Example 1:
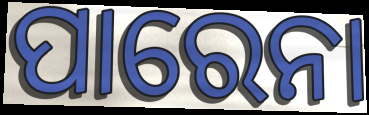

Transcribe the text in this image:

ପାରେନା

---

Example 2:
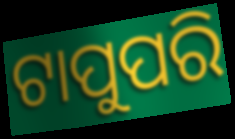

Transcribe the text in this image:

ଟାପୁପରି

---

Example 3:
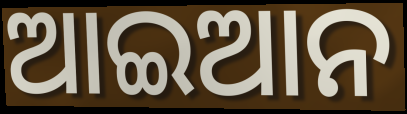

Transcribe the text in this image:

ଆଇଆନ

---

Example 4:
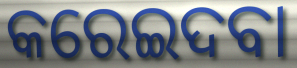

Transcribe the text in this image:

କରେଇଦବା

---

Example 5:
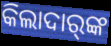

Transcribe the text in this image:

କିଲାଦାର୍‍ଙ୍କ